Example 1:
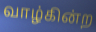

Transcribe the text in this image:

வாழ்கின்ற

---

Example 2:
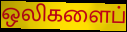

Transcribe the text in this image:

ஒலிகளைப்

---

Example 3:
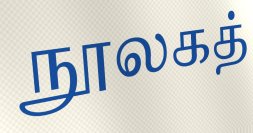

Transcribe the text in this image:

நூலகத்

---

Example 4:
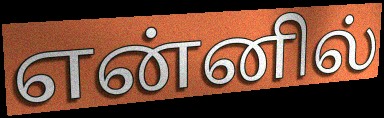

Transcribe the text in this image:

என்னில்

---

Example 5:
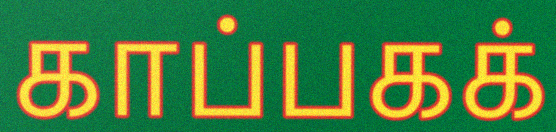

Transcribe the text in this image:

காப்பகக்